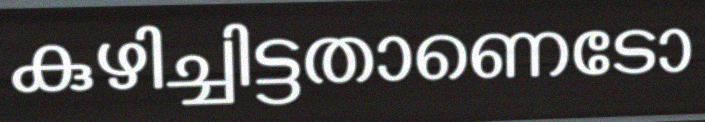
കുഴിച്ചിട്ടതാണെടോ